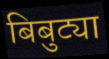
बिबुट्या